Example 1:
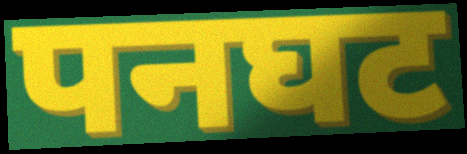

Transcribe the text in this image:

पनघट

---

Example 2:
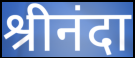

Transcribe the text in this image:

श्रीनंदा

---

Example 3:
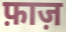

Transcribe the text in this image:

फ़ाज़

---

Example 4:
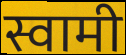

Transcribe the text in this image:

स्‍वामी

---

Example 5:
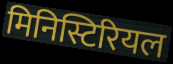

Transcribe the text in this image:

मिनिस्टिरियल